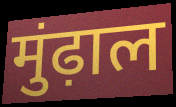
मुंढ़ाल